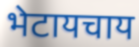
भेटायचाय